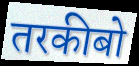
तरकीबो